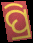
ପ୍ରି